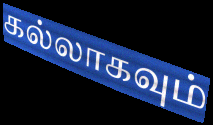
கல்லாகவும்